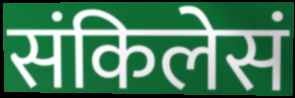
संकिलेसं